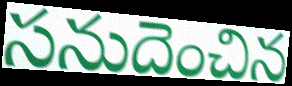
సనుదెంచిన